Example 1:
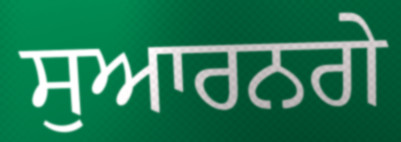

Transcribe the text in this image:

ਸੁਆਰਨਗੇ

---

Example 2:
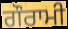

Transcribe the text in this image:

ਗੌਰਾਮੀ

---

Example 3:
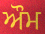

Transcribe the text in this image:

ਔਮ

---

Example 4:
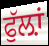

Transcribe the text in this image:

ਫੁੱਲ਼ਾਂ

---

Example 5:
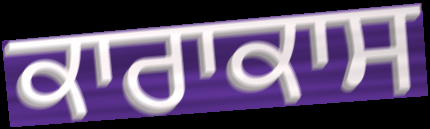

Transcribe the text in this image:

ਕਾਰਾਕਾਸ